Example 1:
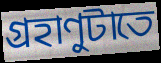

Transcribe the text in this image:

গ্রহাণুটাতে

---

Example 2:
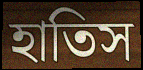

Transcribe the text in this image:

হাতিস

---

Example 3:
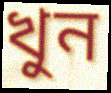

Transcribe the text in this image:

খুন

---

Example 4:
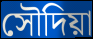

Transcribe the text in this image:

সৌদিয়া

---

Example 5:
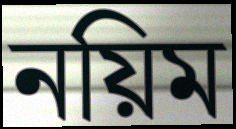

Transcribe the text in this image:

নয়িম